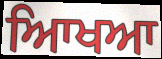
ਆਿਖਆ